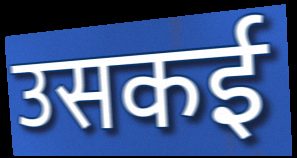
उसकई